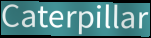
Caterpillar